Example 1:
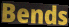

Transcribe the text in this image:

Bends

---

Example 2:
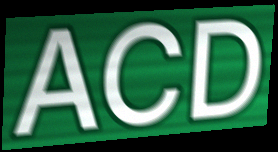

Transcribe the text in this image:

ACD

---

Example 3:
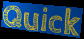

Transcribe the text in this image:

Quick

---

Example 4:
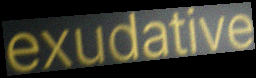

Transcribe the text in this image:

exudative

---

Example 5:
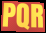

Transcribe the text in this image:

PQR